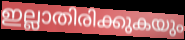
ഇല്ലാതിരിക്കുകയും